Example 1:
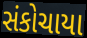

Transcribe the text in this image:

સંકોચાયા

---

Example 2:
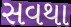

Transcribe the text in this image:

સવથા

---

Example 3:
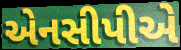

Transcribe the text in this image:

એનસીપીએ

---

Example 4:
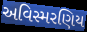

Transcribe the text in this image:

અવિસ્મરણિય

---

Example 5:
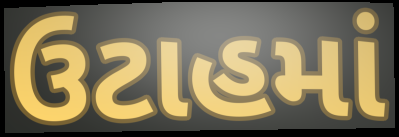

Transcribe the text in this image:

ઉટાહમાં